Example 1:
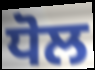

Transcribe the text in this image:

ਧੋਲ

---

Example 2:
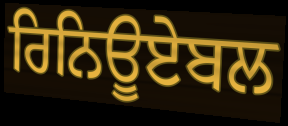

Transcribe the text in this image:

ਰਿਨਿਊਏਬਲ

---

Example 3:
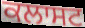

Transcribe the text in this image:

ਕਲਾਸਟ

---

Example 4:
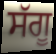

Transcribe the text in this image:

ਸੱਗੂ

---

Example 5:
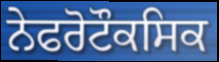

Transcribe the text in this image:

ਨੇਫਰੋਟੌਕਸਿਕ